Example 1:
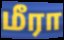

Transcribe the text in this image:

மீரா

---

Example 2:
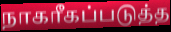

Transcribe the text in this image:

நாகரீகப்படுத்த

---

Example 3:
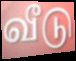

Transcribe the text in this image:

வீடு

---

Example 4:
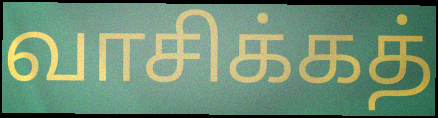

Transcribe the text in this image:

வாசிக்கத்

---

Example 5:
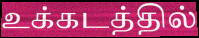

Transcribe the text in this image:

உக்கடத்தில்